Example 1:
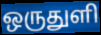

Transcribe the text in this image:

ஒருதுளி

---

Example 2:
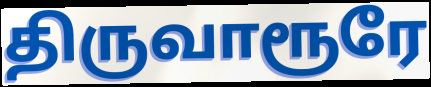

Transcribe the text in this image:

திருவாரூரே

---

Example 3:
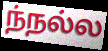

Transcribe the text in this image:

ந்நல்ல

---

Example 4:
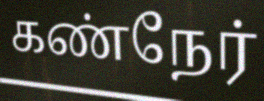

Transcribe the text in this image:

கண்நேர்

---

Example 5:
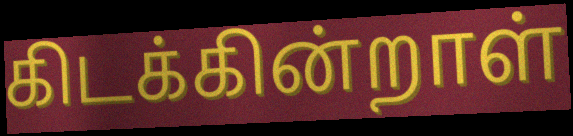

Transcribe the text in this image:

கிடக்கின்றாள்